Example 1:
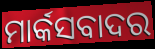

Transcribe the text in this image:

ମାର୍କସବାଦର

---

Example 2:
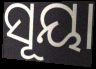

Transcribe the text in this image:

ସୂୟା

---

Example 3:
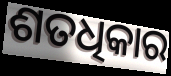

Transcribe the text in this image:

ଶତଧିକାର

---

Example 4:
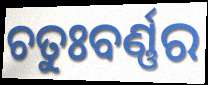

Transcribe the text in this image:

ଚତୁଃବର୍ଣ୍ଣର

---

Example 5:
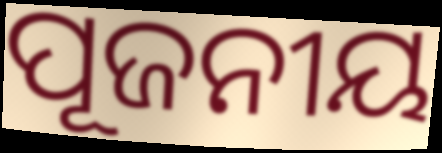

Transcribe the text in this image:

ପୂଜନୀୟ